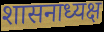
शासनाध्यक्ष